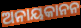
ଅନାୟକାନନ